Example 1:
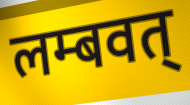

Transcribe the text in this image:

लम्बवत्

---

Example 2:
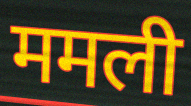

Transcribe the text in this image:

ममली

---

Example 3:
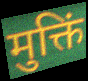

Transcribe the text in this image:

मुक्तिं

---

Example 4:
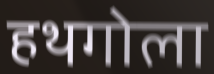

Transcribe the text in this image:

हथगोला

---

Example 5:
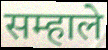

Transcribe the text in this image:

सम्हाले